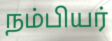
நம்பியர்